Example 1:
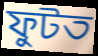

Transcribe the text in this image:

ফুটত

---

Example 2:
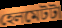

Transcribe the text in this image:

হেলমেটটা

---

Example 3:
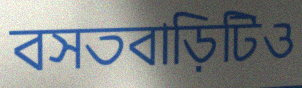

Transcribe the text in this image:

বসতবাড়িটিও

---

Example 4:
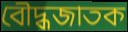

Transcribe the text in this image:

বৌদ্ধজাতক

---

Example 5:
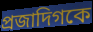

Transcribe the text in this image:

প্রজাদিগকে